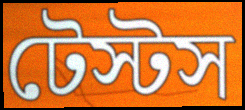
টেস্টস